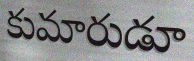
కుమారుడూ